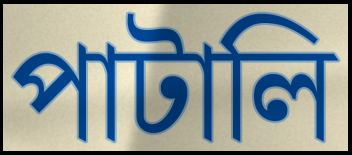
পাটালি